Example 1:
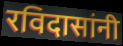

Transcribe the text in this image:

रविदासांनी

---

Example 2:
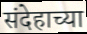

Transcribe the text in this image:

संदेहाच्या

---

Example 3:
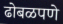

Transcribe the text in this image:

ढोबळपणे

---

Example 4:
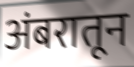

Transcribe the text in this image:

अंबरातून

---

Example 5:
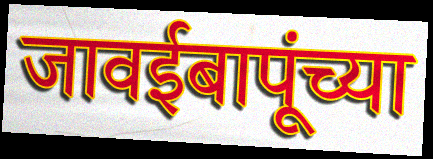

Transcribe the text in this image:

जावईबापूंच्या